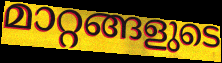
മാറ്റങ്ങളുടെ